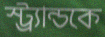
স্ট্র্যান্ডকে